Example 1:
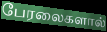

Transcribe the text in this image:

பேரலைகளால்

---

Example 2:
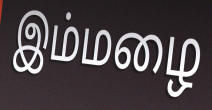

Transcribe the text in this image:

இம்மழை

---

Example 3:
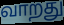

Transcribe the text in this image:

வாறது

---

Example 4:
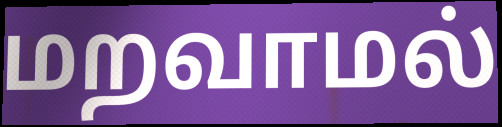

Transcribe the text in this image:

மறவாமல்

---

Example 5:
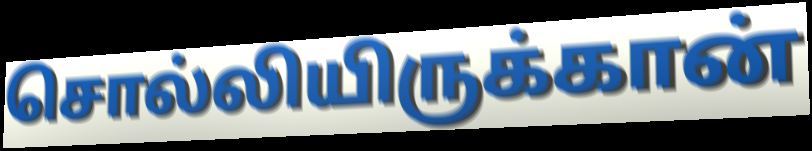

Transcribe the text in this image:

சொல்லியிருக்கான்